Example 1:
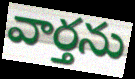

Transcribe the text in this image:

వార్తను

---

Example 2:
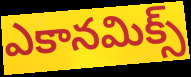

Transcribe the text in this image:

ఎకానమిక్స్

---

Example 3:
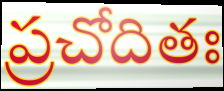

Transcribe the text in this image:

ప్రచోదితః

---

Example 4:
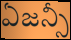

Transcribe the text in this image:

ఏజన్సీ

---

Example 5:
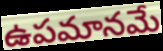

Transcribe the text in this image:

ఉపమానమే